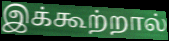
இக்கூற்றால்